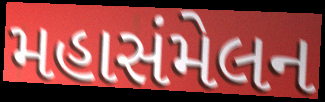
મહાસંમેલન